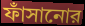
ফাঁসানোর